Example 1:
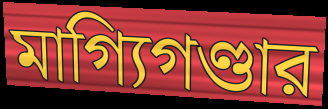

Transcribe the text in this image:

মাগ্যিগণ্ডার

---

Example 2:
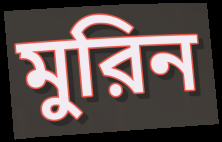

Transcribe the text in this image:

মুরিন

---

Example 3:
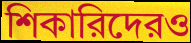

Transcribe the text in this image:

শিকারিদেরও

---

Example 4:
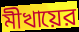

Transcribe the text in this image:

মীখায়ের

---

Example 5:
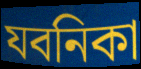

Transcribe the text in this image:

যবনিকা